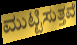
ಮುಟ್ಟಿಸುತ್ತವೆ